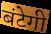
बंटेगी